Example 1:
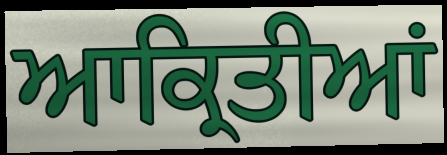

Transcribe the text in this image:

ਆਕ੍ਰਿਤੀਆਂ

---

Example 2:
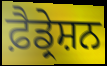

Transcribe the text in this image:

ਫ਼ੈਡ੍ਰੇਸ਼ਨ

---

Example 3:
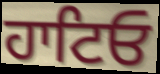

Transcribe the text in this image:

ਹਾਟਿਓ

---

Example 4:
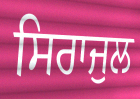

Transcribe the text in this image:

ਸਿਰਾਜੁਲ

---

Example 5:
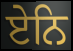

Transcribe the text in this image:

ਏਨਿ